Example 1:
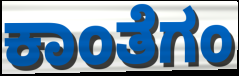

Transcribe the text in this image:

ಕಾಂತೆಗಂ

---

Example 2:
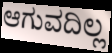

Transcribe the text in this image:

ಆಗುವದಿಲ್ಲ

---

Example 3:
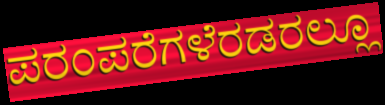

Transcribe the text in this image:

ಪರಂಪರೆಗಳೆರಡರಲ್ಲೂ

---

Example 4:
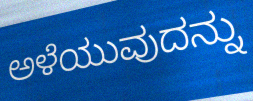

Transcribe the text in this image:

ಅಳೆಯುವುದನ್ನು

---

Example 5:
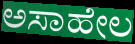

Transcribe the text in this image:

ಅಸಾಹೇಲ